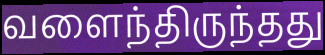
வளைந்திருந்தது